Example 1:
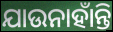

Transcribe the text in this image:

ଯାଉନାହାଁନ୍ତି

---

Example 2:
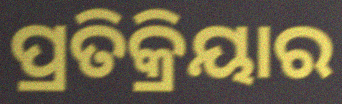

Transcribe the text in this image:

ପ୍ରତିକ୍ରିୟାର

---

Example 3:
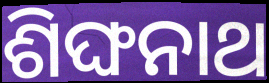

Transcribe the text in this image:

ଶିଙ୍ଘନାଥ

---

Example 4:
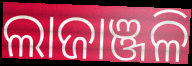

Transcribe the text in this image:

ଲାଜାଞ୍ଜଳି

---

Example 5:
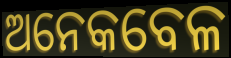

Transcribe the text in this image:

ଅନେକବେଳ